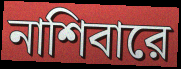
নাশিবারে